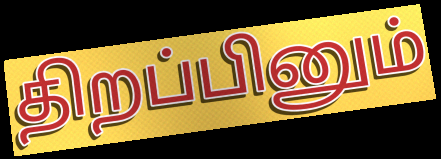
திறப்பினும்